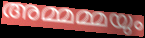
അമ്മമ്മയും